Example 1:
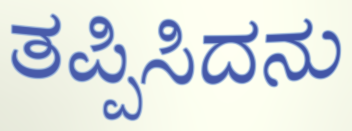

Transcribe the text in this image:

ತಪ್ಪಿಸಿದನು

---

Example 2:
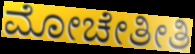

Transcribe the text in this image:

ಮೋಚೇತೀತಿ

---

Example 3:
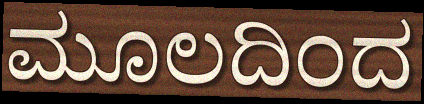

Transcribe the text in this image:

ಮೂಲದಿಂದ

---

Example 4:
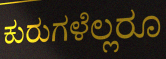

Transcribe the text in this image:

ಕುರುಗಳೆಲ್ಲರೂ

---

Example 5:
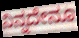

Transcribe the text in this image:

ನಿನ್ನದೇನೂ